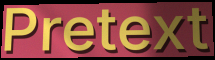
Pretext